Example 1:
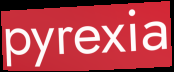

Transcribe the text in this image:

pyrexia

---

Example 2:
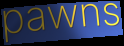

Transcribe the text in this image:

pawns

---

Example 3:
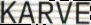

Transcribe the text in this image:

KARVE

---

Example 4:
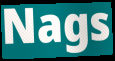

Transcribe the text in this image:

Nags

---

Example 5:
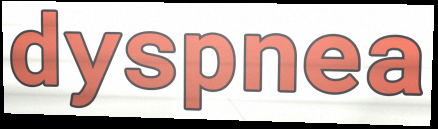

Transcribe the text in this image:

dyspnea